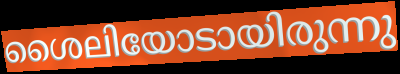
ശൈലിയോടായിരുന്നു